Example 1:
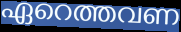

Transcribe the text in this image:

ഏറെത്തവണ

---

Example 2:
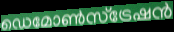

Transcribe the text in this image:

ഡെമോൺസ്ട്രേഷൻ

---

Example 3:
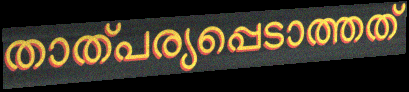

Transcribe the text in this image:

താത്പര്യപ്പെടാത്തത്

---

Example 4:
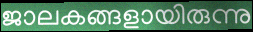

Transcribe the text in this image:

ജാലകങ്ങളായിരുന്നു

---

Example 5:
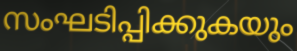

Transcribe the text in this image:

സംഘടിപ്പിക്കുകയും